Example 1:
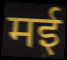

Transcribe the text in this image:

मई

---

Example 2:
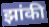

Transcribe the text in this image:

झांकी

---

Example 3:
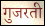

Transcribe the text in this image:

गुजरती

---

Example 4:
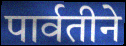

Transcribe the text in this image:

पार्वतीने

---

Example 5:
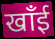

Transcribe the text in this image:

खाँई